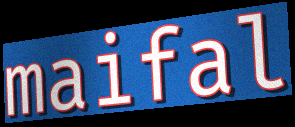
maifal